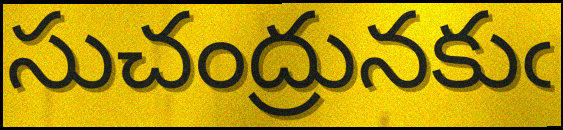
సుచంద్రునకుఁ